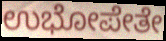
ಉಭೋಪೇತೇ